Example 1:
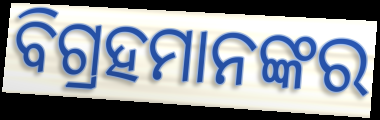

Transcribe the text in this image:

ବିଗ୍ରହମାନଙ୍କର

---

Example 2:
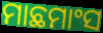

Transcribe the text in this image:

ମାଛମାଂସ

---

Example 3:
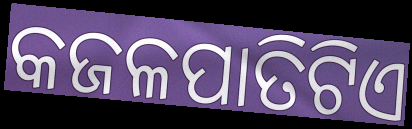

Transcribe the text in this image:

କଜଳପାତିଟିଏ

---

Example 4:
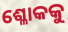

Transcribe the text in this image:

ଶ୍ଳୋକକୁ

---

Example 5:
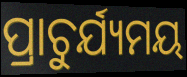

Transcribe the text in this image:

ପ୍ରାଚୁର୍ଯ୍ୟମୟ